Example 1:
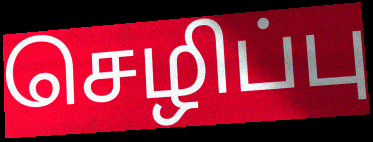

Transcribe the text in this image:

செழிப்பு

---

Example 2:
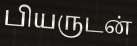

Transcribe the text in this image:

பியருடன்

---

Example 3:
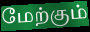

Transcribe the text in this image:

மேற்கும்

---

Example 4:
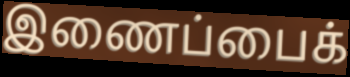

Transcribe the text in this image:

இணைப்பைக்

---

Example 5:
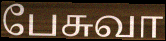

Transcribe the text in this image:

பேசுவா